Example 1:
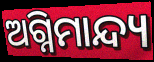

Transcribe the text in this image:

ଅଗ୍ନିମାନ୍ଦ୍ୟ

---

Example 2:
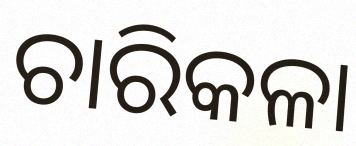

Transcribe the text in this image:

ଚାରିକଳା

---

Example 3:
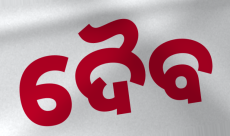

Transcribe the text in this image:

ଦୈବ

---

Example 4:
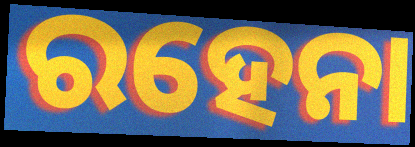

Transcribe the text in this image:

ରହେନା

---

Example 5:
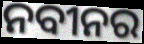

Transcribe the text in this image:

ନବୀନର